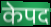
केपद